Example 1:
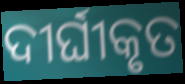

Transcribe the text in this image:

ଦୀର୍ଘୀକୃତ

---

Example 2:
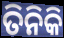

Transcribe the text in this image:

ତିନିକି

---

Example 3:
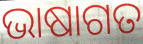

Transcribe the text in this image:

ଭାଷାଗତ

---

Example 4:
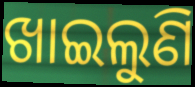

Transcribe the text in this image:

ଖାଇଲୁଣି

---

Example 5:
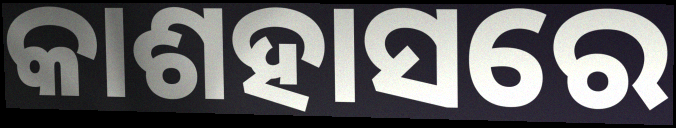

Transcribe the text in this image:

କାଶହାସରେ